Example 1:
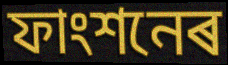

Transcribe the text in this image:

ফাংশনেৰ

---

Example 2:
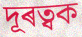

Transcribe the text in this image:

দূৰত্বক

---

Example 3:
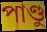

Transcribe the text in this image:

পাণ্ডু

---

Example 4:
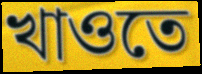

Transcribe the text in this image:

খাওতে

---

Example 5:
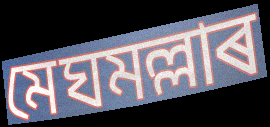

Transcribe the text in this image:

মেঘমল্লাৰ